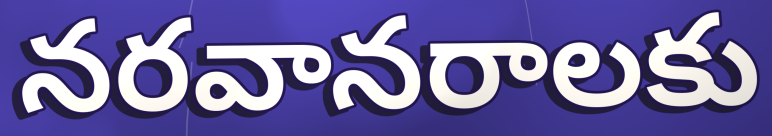
నరవానరాలకు